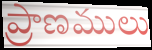
ప్రాణములు